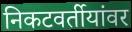
निकटवर्तीयांवर